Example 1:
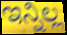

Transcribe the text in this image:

ಇನ್ನಿಲ್ಲ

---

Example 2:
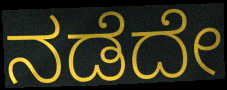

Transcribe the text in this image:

ನಡೆದೇ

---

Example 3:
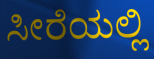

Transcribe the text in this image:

ಸೀರೆಯಲ್ಲಿ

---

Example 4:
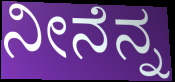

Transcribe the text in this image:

ನೀನೆನ್ನ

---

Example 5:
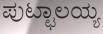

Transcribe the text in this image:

ಪುಟ್ಟಾಲಯ್ಯ